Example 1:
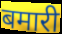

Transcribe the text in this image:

बमारी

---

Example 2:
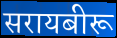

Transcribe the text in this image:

सरायबीरू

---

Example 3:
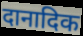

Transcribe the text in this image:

दानादिक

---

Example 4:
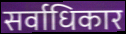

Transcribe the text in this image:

सर्वाधिकार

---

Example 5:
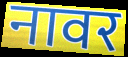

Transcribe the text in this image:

नावर